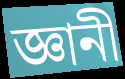
জ্ঞানী